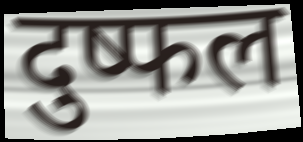
दुष्फल